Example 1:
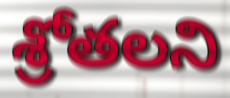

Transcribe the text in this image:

శ్రోతలని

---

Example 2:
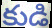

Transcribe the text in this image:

కుడి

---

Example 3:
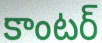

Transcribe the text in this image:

కాంటర్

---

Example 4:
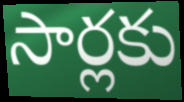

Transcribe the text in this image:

సార్లకు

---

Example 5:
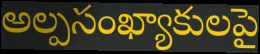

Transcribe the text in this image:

అల్పసంఖ్యాకులపై